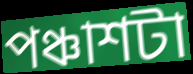
পঞ্চাশটা